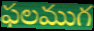
ఫలముగ